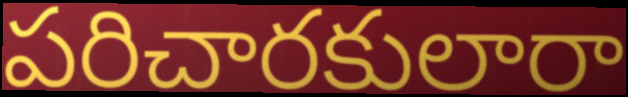
పరిచారకులారా